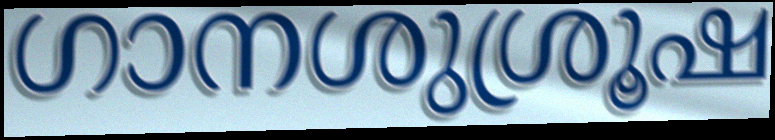
ഗാനശുശ്രൂഷ